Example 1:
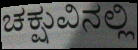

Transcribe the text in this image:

ಚಕ್ಷುವಿನಲ್ಲಿ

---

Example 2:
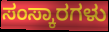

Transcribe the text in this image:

ಸಂಸ್ಕಾರಗಳು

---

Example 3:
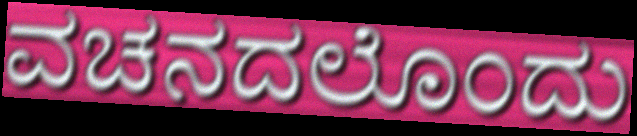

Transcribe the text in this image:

ವಚನದಲೊಂದು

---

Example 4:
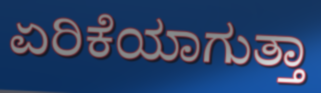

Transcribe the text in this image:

ಏರಿಕೆಯಾಗುತ್ತಾ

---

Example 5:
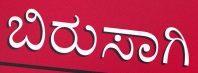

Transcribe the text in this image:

ಬಿರುಸಾಗಿ